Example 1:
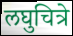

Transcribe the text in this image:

लघुचित्रे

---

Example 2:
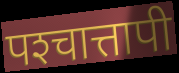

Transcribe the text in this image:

पश्‍चात्तापी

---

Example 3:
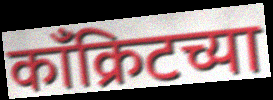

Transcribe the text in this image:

काँक्रिटच्या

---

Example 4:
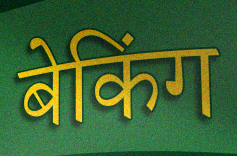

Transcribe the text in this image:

बेकिंग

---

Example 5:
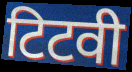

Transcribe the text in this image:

टिटवी